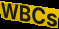
WBCs